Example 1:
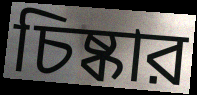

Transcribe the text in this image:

চিষ্কার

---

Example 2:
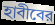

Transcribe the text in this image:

হাবীবের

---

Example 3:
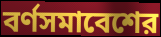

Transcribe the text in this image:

বর্ণসমাবেশের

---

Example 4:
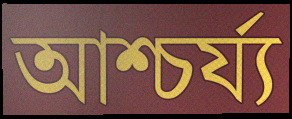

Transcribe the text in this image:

আশ্চর্য্য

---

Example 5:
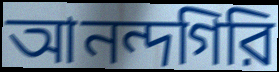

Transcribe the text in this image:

আনন্দগিরি